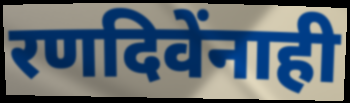
रणदिवेंनाही